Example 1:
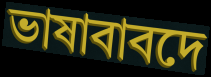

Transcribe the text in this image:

ভাষাবাবদে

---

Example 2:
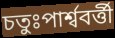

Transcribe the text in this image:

চতুঃপার্শ্ববর্ত্তী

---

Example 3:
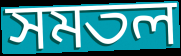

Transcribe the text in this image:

সমতল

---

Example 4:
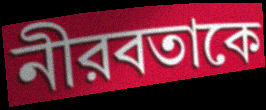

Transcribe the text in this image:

নীরবতাকে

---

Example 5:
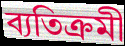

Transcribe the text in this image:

ব্যতিক্রমী